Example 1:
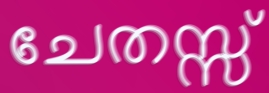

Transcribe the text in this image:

ചേതസ്സ്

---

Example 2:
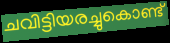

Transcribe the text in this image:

ചവിട്ടിയരച്ചുകൊണ്ട്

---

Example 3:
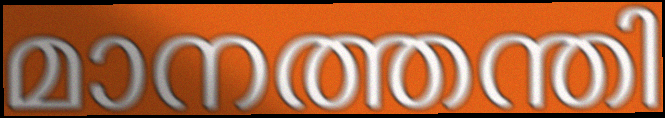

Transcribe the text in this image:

മാനത്തന്തി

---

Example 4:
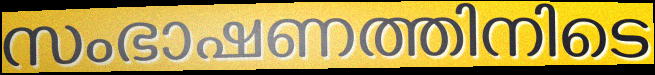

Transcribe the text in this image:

സംഭാഷണത്തിനിടെ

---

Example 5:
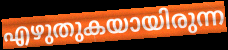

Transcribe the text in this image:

എഴുതുകയായിരുന്ന